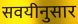
सवयीनुसार